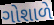
ગોશાળે